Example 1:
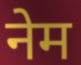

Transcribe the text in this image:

नेम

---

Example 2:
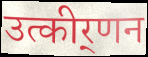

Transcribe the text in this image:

उत्कीर्णन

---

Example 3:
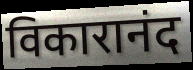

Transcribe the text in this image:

विकारानंद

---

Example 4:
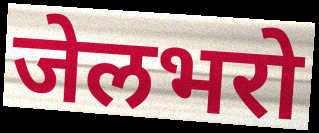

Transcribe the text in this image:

जेलभरो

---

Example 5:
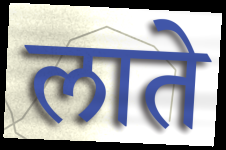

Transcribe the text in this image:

लाते